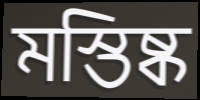
মস্তিষ্ক